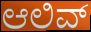
ಆಲಿವ್